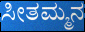
ಸೀತಮ್ಮನ